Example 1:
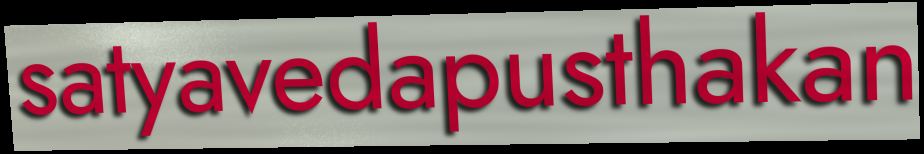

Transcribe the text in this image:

satyavedapusthakan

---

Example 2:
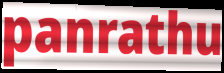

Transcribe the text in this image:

panrathu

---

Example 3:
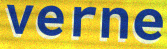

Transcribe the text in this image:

verne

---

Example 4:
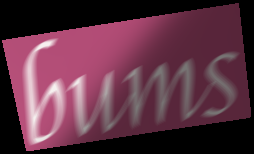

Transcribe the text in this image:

bums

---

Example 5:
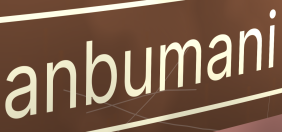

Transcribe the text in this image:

anbumani